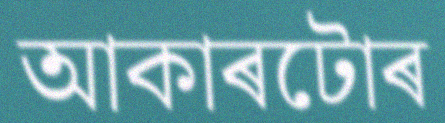
আকাৰটোৰ